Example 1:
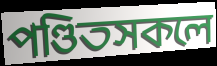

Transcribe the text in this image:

পণ্ডিতসকলে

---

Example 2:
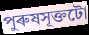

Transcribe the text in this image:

পুৰুষসূক্তটো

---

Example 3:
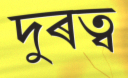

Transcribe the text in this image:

দুৰত্ব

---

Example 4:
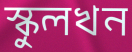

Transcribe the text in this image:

স্কুলখন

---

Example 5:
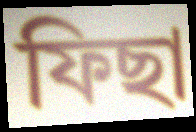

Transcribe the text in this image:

ফিছা